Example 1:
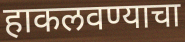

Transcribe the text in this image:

हाकलवण्याचा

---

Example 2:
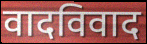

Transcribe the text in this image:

वादविवाद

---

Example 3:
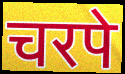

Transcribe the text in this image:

चरपे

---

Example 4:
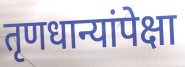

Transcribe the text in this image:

तृणधान्यांपेक्षा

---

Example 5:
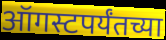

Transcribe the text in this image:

ऑगस्टपर्यंतच्या